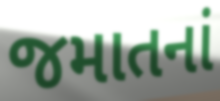
જમાતનાં